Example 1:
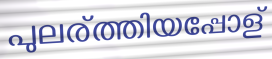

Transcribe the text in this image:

പുലര്ത്തിയപ്പോള്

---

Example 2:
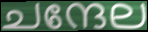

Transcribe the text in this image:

ചന്ദേല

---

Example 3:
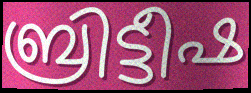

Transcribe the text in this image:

ബ്രിട്ടീഷ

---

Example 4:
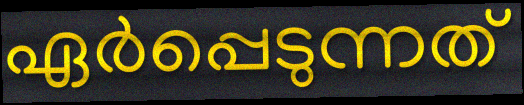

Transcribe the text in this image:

ഏർപ്പെടുന്നത്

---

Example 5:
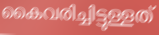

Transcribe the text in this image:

കൈവരിച്ചിട്ടുള്ളത്